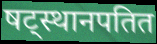
षट्स्थानपतित